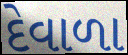
દેવાળા